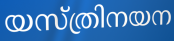
യസ്ത്രിനയന